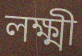
লক্ষ্মী